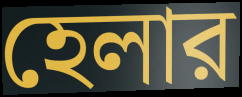
হেলার